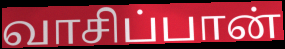
வாசிப்பான்